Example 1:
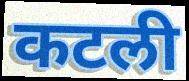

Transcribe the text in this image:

कटली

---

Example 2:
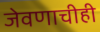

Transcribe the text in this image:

जेवणाचीही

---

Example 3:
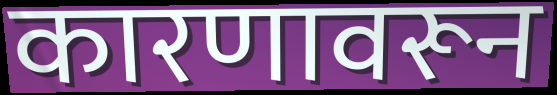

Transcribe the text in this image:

कारणावरून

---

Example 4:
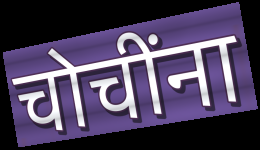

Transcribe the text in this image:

चोचींना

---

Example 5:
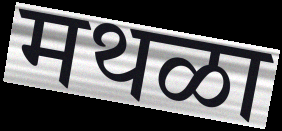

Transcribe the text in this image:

मथळा